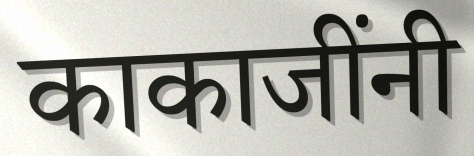
काकाजींनी